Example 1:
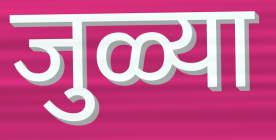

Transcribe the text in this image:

जुळ्या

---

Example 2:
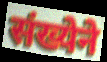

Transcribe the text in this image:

संख्येने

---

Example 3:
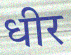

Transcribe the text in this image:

धीर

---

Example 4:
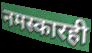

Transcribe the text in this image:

नमस्कारही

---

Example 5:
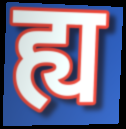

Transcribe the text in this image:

ह्य